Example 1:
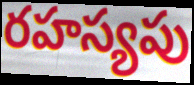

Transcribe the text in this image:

రహస్యపు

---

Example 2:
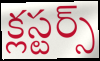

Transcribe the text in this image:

క్లస్టర్స్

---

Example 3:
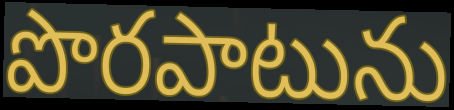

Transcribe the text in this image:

పొరపాటును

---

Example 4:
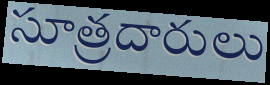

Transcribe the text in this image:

సూత్రదారులు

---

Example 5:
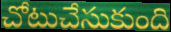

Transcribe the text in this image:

చోటుచేసుకుంది